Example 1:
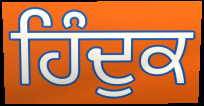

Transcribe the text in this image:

ਹਿੰਦੁਕ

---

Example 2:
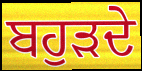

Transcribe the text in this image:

ਬਹੁੜਦੇ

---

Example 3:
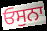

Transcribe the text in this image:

ਓਸੁਨਾ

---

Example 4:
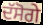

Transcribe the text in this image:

ਦੱਸੋਗੇ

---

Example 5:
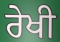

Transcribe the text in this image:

ਰੇਖੀ